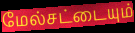
மேல்சட்டையும்